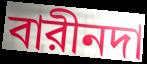
বারীনদা